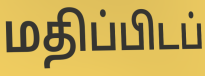
மதிப்பிடப்